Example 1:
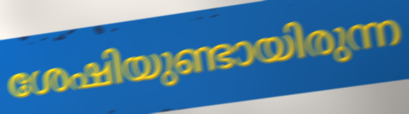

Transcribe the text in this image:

ശേഷിയുണ്ടായിരുന്ന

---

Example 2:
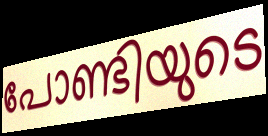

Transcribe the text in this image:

പോണ്ടിയുടെ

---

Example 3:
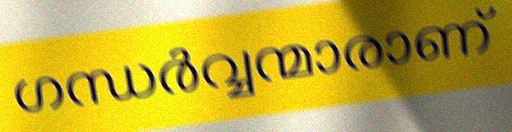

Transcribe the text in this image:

ഗന്ധർവ്വന്മാരാണ്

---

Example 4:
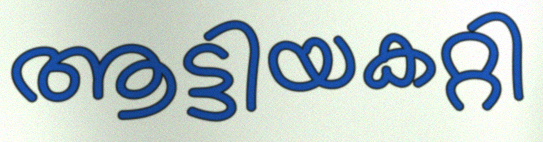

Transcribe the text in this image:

ആട്ടിയകറ്റി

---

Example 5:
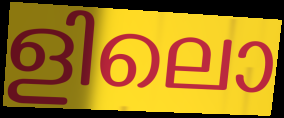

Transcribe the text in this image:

ളിലൊ